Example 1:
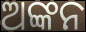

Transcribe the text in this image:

ଅଙ୍କନ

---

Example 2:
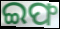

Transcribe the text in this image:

ଇଫ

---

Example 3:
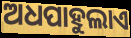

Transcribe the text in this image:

ଅଧପାହୁଲାଏ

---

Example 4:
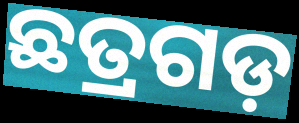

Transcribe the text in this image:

ଛତ୍ରଗଡ଼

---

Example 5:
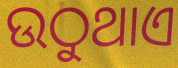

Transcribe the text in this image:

ଉଠୁଥାଏ